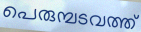
പെരുമ്പടവത്ത്